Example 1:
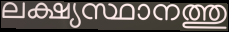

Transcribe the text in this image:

ലക്ഷ്യസ്ഥാനത്തു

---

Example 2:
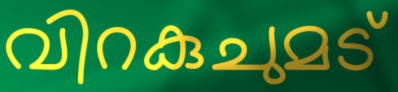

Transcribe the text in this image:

വിറകുചുമട്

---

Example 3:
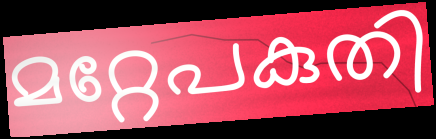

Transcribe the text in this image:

മറ്റേപകുതി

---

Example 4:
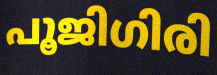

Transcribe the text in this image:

പൂജിഗിരി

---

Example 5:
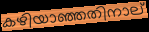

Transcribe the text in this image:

കഴിയാഞ്ഞതിനാല്